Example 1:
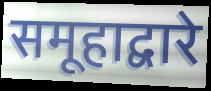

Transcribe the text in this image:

समूहाद्वारे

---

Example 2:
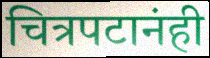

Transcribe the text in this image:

चित्रपटानंही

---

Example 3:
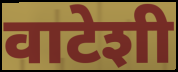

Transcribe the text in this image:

वाटेशी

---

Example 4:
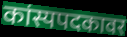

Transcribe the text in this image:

कांस्यपदकावर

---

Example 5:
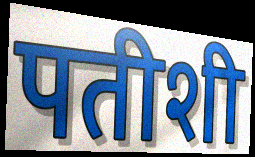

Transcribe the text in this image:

पतीशी